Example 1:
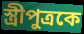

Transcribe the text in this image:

স্ত্রীপুত্রকে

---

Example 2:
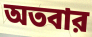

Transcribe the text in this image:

অতবার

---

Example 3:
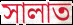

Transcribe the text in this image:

সালাত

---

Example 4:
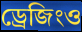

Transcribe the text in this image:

ড্রেজিংও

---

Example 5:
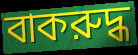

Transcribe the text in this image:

বাকরুদ্ধ